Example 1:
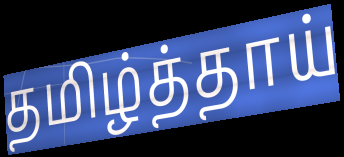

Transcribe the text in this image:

தமிழ்த்தாய்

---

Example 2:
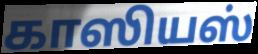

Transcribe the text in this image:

காஸியஸ்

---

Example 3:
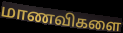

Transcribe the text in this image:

மாணவிகளை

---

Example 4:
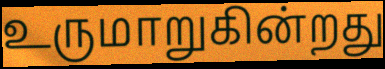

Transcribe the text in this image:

உருமாறுகின்றது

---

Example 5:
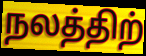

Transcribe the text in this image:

நலத்திற்